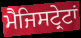
ਮੈਜਿਸਟ੍ਰੇਟਾਂ